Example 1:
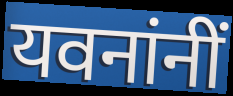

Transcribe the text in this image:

यवनांनीं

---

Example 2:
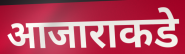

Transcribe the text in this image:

आजाराकडे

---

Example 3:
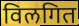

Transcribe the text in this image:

विलगित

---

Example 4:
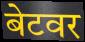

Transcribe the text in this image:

बेटवर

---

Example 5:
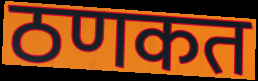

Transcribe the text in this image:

ठणकत